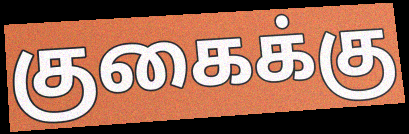
குகைக்கு